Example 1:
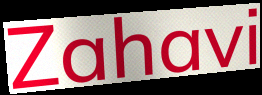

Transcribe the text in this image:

Zahavi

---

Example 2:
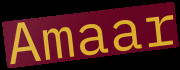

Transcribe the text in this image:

Amaar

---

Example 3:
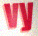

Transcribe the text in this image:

vy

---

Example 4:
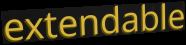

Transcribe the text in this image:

extendable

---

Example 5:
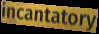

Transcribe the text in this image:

incantatory